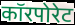
कॉरपोरेट